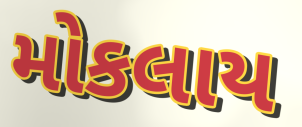
મોકલાય